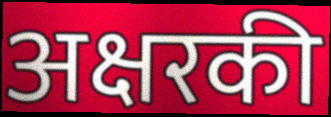
अक्षरकी